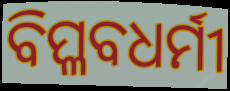
ବିପ୍ଳବଧର୍ମୀ